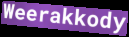
Weerakkody